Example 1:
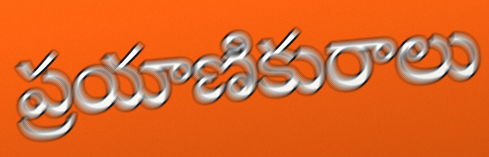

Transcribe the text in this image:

ప్రయాణికురాలు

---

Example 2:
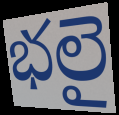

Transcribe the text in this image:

భలై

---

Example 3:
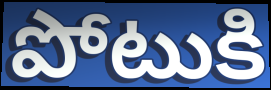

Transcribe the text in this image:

పోటుకి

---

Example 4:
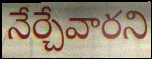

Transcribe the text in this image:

నేర్చేవారని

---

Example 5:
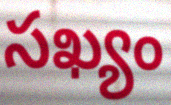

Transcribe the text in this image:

సఖ్యం